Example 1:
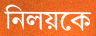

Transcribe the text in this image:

নিলয়কে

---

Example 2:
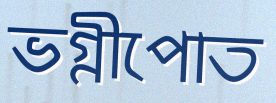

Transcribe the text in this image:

ভগ্নীপোত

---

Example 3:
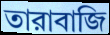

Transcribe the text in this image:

তারাবাজি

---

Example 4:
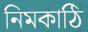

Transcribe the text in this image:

নিমকাঠি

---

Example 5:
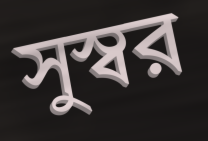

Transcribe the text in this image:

সুস্বর